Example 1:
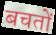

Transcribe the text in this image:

बचतों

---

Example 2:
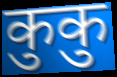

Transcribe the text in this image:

कुकु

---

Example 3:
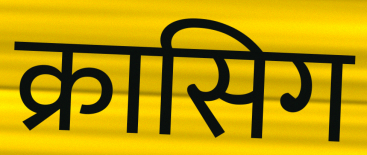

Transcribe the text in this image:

क्रासिग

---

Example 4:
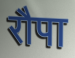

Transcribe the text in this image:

रौपा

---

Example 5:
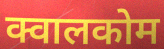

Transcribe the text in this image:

क्वालकोम